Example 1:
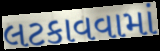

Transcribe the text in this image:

લટકાવવામાં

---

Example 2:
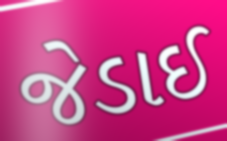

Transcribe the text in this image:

જેડાઈ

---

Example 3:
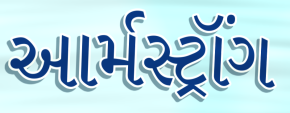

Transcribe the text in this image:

આર્મસ્ટ્રૉંગ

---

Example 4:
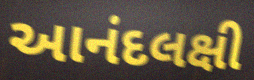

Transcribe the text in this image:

આનંદલક્ષી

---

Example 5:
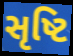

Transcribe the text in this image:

સૃષ્ટિ